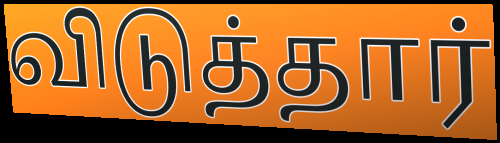
விடுத்தார்